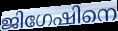
ജിഗേഷിനെ